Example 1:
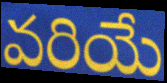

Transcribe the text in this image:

వరియే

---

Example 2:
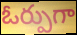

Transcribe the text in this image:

ఓర్పుగా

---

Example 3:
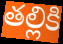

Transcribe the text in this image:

తల్లికి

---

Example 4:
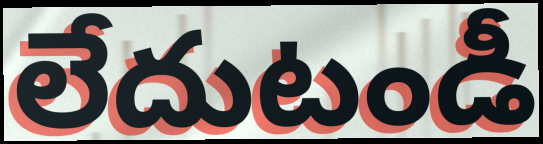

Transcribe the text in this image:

లేదుటండీ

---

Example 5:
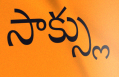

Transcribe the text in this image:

సాక్స్లు